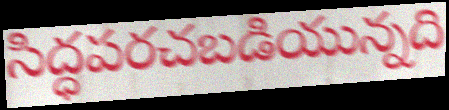
సిద్ధపరచబడియున్నది